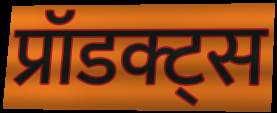
प्रॉडक्ट्स